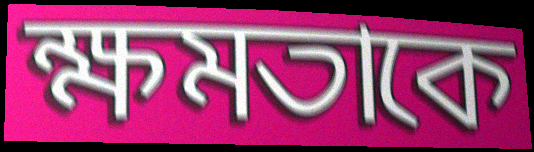
ক্ষমতাকে